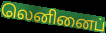
லெனினைப்